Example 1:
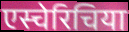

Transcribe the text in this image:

एस्चेरिचिया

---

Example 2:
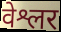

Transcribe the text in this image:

वेश्लर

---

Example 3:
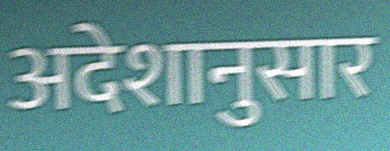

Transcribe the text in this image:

अदेशानुसार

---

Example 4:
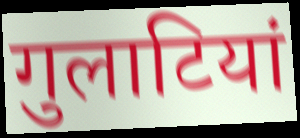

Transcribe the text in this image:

गुलाटियां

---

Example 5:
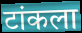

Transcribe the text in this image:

टांकला